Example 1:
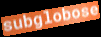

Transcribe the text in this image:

subglobose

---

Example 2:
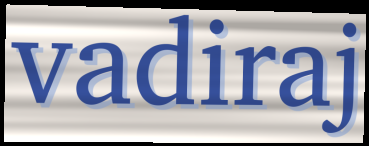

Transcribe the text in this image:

vadiraj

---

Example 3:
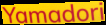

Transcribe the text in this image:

Yamadori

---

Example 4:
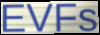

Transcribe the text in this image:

EVFs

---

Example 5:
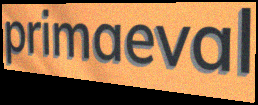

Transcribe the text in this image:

primaeval